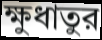
ক্ষুধাতুর